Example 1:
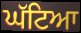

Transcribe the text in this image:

ਘੱਟਿਆ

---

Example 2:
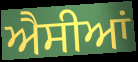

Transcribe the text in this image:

ਐਸੀਆਂ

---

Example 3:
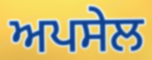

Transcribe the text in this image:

ਅਪਸੇਲ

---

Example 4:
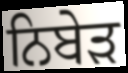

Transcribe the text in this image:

ਨਿਬੇੜ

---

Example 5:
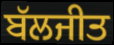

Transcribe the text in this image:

ਬੱਲਜੀਤ